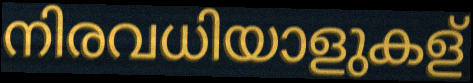
നിരവധിയാളുകള്